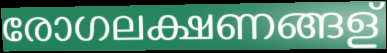
രോഗലക്ഷണങ്ങള്